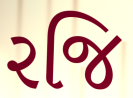
રજિ